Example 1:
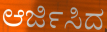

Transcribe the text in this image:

ಆರ್ಜಿಸಿದ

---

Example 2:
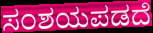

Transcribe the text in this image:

ಸಂಶಯಪಡದೆ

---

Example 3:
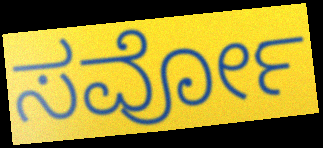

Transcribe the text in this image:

ಸರ್ವೋ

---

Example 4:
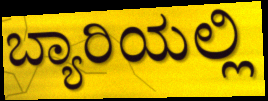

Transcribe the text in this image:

ಬ್ಯಾರಿಯಲ್ಲಿ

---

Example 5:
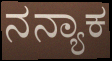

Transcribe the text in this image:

ನನ್ಯಾಕ